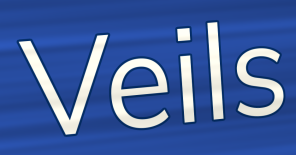
Veils